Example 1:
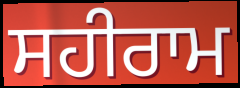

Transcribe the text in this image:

ਸਹੀਰਾਮ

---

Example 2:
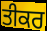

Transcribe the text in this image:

ਤੀਕਰ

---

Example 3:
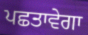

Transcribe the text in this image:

ਪਛਤਾਵੇਗਾ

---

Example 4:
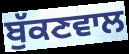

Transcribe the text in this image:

ਬੁੱਕਣਵਾਲ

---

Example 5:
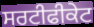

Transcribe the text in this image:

ਸਰਟੀਫੀਕੇਟ